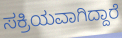
ಸಕ್ರಿಯವಾಗಿದ್ದಾರೆ